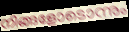
നിങ്ങളോടൊന്നും